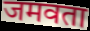
जमवता